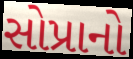
સોપ્રાનો